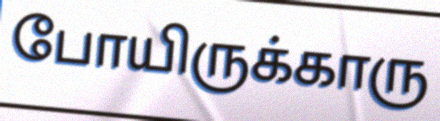
போயிருக்காரு